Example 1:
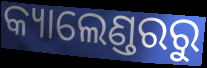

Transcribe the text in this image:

କ୍ୟାଲେଣ୍ଡରରୁ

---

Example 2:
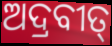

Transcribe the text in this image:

ଅଦ୍ରବୀତ୍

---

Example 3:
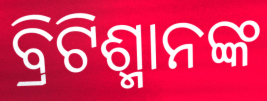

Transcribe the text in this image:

ବ୍ରିଟିଶ୍ମାନଙ୍କ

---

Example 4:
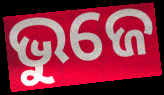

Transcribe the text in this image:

ଭୁଜେ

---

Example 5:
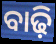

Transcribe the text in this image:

ବାଢ଼ି